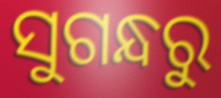
ସୁଗନ୍ଧରୁ